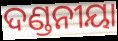
ଦଣ୍ଡନୀୟା